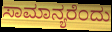
ಸಾಮಾನ್ಯರೆಂದು